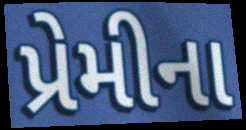
પ્રેમીના